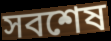
সবশেষ